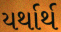
યર્થાર્થ